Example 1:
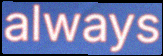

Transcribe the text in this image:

always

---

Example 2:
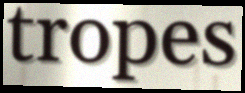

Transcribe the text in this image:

tropes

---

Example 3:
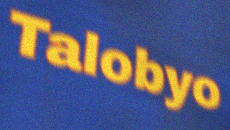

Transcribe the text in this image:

Talobyo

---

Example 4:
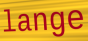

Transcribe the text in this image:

lange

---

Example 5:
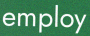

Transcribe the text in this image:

employ